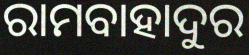
ରାମବାହାଦୁର